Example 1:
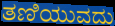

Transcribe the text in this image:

ತಣಿಯುವದು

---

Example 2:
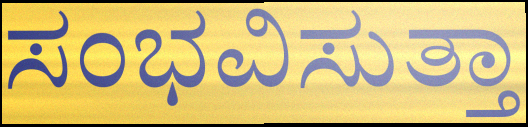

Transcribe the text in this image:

ಸಂಭವಿಸುತ್ತಾ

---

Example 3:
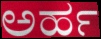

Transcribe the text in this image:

ಅರ್ಹ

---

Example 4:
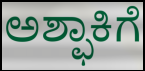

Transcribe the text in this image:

ಅಶ್ಫಾಕಿಗೆ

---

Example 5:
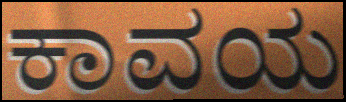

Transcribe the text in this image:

ಕಾವಯ